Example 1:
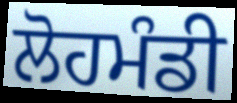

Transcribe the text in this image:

ਲੋਹਮੰਡੀ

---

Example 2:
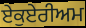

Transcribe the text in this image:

ਏਕੁਏਰੀਅਮ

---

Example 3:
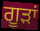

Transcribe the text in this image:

ਗੂੜਾਂ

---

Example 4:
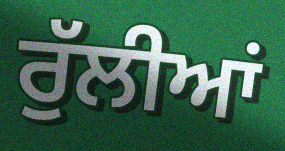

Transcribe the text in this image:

ਰੁੱਲੀਆਂ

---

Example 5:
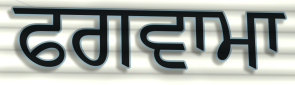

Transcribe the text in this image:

ਫਗਵਾਮਾ